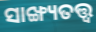
ସାଙ୍ଖ୍ୟତତ୍ତ୍ଵ